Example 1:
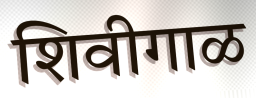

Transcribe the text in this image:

शिवीगाळ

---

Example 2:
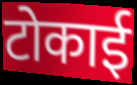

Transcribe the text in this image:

टोकाई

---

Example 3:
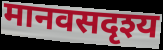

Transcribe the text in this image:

मानवसदृश्य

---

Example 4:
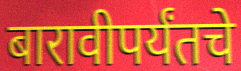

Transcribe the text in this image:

बारावीपर्यंतचे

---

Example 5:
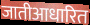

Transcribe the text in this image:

जातीआधारित